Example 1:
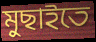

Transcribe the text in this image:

মুছাইতে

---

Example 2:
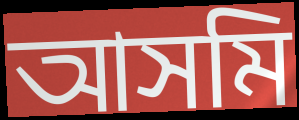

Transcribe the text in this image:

আসমি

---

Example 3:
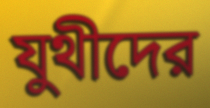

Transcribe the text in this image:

যুথীদের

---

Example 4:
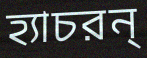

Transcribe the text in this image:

হ্যাচরন্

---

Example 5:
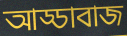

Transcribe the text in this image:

আড্ডাবাজ